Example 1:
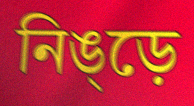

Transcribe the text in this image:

নিঙ্ড়ে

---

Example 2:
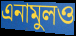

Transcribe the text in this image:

এনামুলও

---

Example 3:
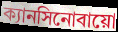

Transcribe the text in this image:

ক্যানসিনোবায়ো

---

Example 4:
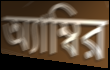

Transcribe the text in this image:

অ্যাম্বির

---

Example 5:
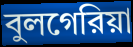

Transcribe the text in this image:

বুলগেরিয়া